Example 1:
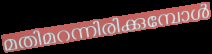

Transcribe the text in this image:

മതിമറന്നിരിക്കുമ്പോൾ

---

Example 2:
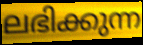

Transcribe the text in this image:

ലഭിക്കുന്ന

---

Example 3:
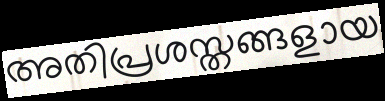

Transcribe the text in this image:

അതിപ്രശസ്തങ്ങളായ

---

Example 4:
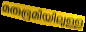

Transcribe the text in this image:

മരുഭൂമിയിലുള്ള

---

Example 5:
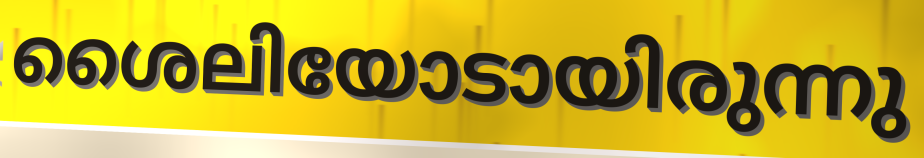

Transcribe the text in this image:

ശൈലിയോടായിരുന്നു